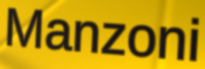
Manzoni